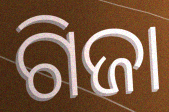
ଗିଜା